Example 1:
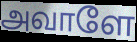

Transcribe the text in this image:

அவாளே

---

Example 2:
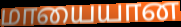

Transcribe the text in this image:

மாயையான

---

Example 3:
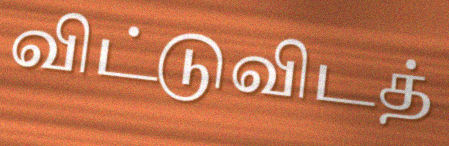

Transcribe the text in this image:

விட்டுவிடத்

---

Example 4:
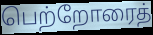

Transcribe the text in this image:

பெற்றோரைத்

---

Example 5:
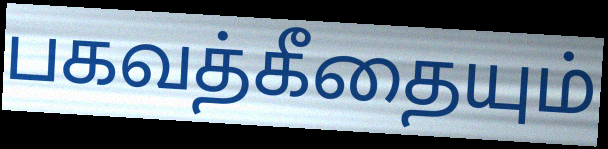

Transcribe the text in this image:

பகவத்கீதையும்